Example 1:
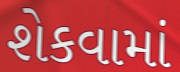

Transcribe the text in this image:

શેકવામાં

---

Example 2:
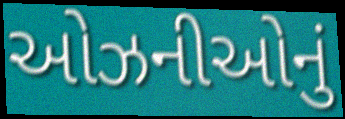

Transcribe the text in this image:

ઓઝનીઓનું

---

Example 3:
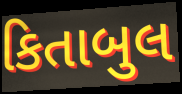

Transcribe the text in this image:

કિતાબુલ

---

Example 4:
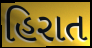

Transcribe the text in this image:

હિરાત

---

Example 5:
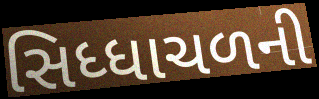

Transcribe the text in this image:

સિધ્ધાચળની